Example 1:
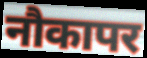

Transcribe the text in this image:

नौकापर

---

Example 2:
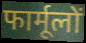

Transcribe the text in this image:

फार्मूलों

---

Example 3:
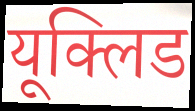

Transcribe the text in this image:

यूक्लिड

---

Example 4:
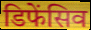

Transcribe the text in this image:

डिफेंसिव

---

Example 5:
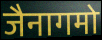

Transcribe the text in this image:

जैनागमो